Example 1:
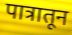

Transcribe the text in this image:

पात्रातून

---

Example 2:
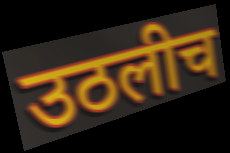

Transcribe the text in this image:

उठलीच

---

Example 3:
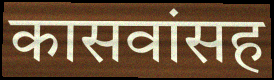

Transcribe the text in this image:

कासवांसह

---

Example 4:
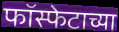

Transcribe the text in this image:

फॉस्फेटाच्या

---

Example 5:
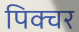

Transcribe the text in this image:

पिक्चर